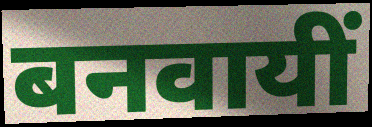
बनवायीं